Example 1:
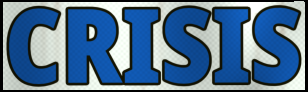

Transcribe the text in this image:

CRISIS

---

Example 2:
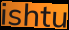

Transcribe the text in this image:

ishtu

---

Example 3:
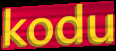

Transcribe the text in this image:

kodu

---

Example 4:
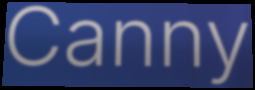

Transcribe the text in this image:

Canny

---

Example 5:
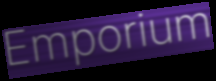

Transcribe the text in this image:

Emporium